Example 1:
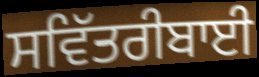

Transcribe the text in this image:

ਸਵਿੱਤਰੀਬਾਈ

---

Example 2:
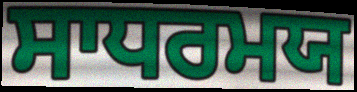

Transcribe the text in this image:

ਸਾਧਰਮਯ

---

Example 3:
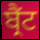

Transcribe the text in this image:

ਬ੍ਰੈਂਟ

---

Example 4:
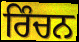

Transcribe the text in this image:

ਰਿੰਚਨ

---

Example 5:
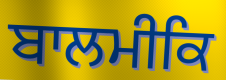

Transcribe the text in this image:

ਬਾਲਮੀਕਿ